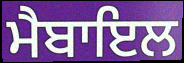
ਮੈਬਾਇਲ